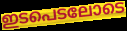
ഇടപെടലോടെ